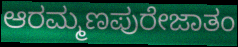
ಆರಮ್ಮಣಪುರೇಜಾತಂ